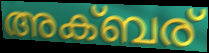
അക്ബര്